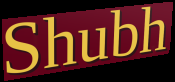
Shubh